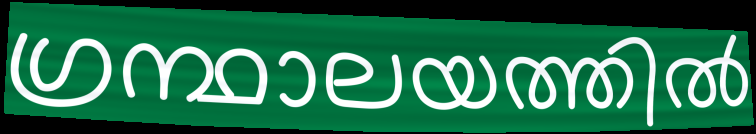
ഗ്രന്ഥാലയത്തിൽ